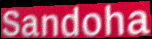
Sandoha